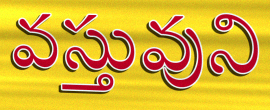
వస్తువుని